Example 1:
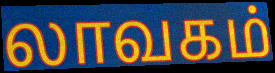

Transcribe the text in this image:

லாவகம்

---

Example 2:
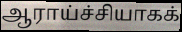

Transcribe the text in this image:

ஆராய்ச்சியாகக்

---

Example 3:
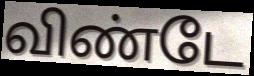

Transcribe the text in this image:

விண்டே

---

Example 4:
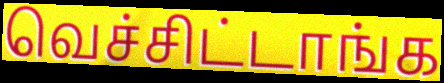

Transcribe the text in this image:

வெச்சிட்டாங்க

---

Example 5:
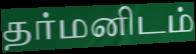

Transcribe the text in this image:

தர்மனிடம்